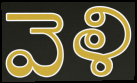
వెళి